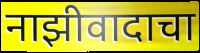
नाझीवादाचा